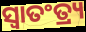
ସ୍ଵାତଂତ୍ର୍ୟ